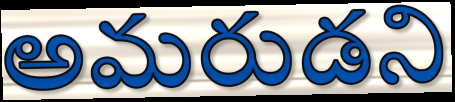
అమరుడని